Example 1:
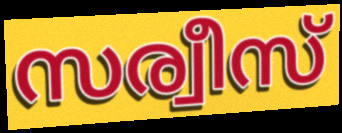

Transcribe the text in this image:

സര്വീസ്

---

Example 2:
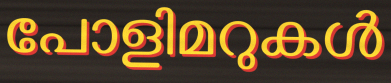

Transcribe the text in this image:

പോളിമറുകൾ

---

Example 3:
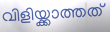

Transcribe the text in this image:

വിളിയ്ക്കാത്തത്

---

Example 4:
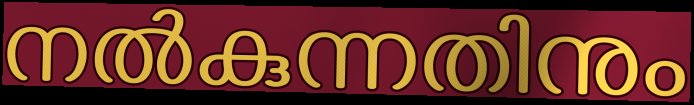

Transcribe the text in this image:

നൽകുന്നതിനും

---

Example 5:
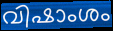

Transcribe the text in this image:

വിഷാംശം